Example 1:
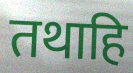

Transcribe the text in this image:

तथाहि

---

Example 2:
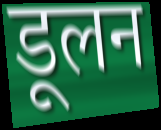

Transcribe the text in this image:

डूलन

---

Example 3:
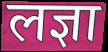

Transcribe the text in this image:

लज्ञा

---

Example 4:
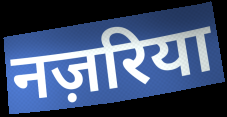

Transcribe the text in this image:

नज़रिया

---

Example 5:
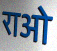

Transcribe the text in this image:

राओ